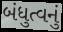
બંધુત્વનું